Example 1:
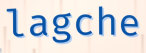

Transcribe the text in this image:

lagche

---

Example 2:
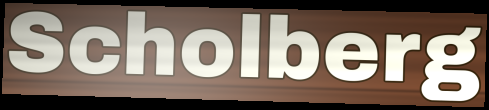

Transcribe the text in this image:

Scholberg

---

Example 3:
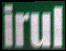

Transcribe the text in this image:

irul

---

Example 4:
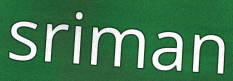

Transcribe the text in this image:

sriman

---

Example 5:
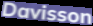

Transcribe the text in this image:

Davisson